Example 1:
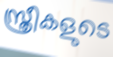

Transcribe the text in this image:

സ്ത്രീകളുടെ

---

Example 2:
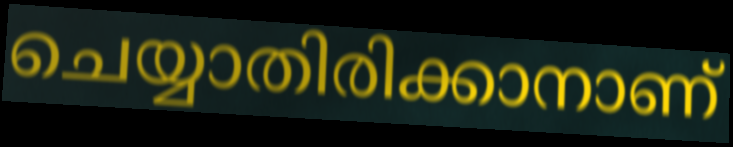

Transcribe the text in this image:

ചെയ്യാതിരിക്കാനാണ്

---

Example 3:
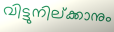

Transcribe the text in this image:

വിട്ടുനില്ക്കാനും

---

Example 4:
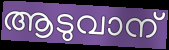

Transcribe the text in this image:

ആടുവാന്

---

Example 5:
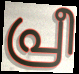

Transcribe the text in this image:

പ്രീ